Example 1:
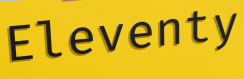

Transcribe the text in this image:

Eleventy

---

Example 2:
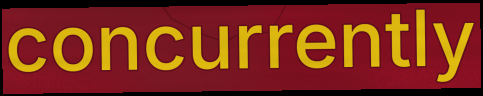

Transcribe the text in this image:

concurrently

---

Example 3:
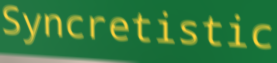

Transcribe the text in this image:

Syncretistic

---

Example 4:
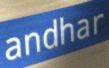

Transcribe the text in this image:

andhar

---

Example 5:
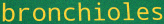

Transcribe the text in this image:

bronchioles